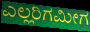
ಎಲ್ಲರಿಗಮೀಗ